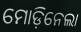
ମୋଡ଼ିନେଲା